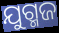
ଯୁଗ୍ମଜ